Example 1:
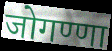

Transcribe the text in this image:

जोगण्णा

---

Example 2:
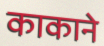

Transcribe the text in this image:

काकाने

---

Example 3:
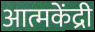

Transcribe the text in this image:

आत्मकेंद्री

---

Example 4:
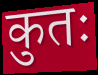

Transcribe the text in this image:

कुतः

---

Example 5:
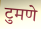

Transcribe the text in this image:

टुमणे